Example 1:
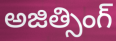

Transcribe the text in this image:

అజిత్సింగ్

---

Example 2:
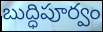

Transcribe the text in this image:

బుద్ధిపూర్వం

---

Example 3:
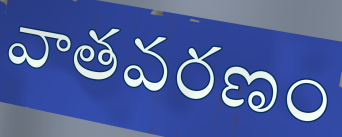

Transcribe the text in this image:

వాతవరణం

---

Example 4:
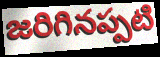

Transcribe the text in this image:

జరిగినప్పటి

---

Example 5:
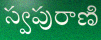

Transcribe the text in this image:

స్వపురాణి